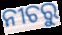
ନୀଚରୁ